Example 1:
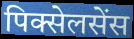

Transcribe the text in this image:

पिक्सेलसेंस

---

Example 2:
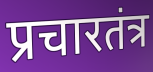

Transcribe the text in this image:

प्रचारतंत्र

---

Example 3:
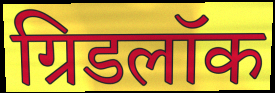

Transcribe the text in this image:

ग्रिडलॉक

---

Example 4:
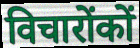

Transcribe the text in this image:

विचारोंकों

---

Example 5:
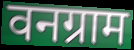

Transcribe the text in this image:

वनग्राम